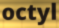
octyl